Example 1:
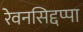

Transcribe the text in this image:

रेवनसिद्दप्पा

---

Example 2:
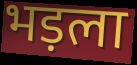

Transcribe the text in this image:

भड़ला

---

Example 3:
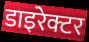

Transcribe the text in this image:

डाइरेक्टर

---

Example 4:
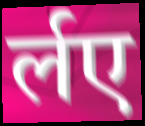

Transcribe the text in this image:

र्लए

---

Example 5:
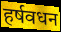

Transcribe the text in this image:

हर्षवधन